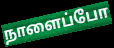
நாளைப்போ